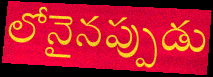
లోనైనప్పుడు